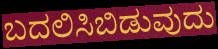
ಬದಲಿಸಿಬಿಡುವುದು